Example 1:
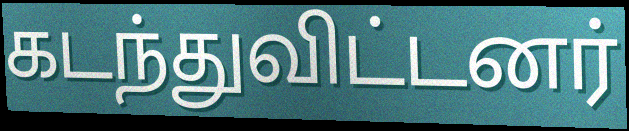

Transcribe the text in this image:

கடந்துவிட்டனர்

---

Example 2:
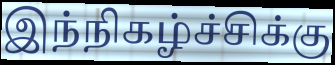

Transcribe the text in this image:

இந்நிகழ்ச்சிக்கு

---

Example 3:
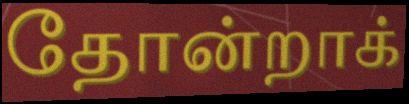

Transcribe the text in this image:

தோன்றாக்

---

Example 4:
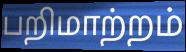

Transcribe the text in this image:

பறிமாற்றம்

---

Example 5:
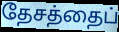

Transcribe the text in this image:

தேசத்தைப்